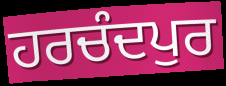
ਹਰਚੰਦਪੁਰ